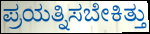
ಪ್ರಯತ್ನಿಸಬೇಕಿತ್ತು